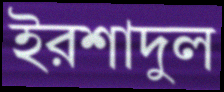
ইরশাদুল